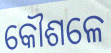
କୌଶଳେ